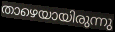
താഴെയായിരുന്നു